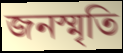
জনস্মৃতি